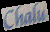
Chalu